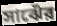
সাঝেঁর